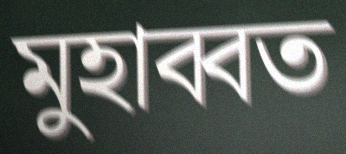
মুহাব্বত